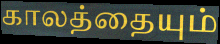
காலத்தையும்